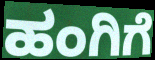
ಹಂಗಿಗೆ